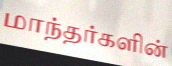
மாந்தர்களின்